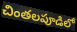
చింతలపూడిలో